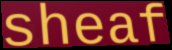
sheaf